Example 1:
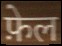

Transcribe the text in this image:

फ़ेल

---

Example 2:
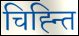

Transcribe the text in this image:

चिह्न्ति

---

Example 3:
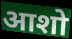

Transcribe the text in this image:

आशो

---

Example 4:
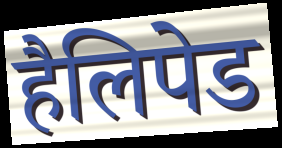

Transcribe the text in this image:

हैलिपेड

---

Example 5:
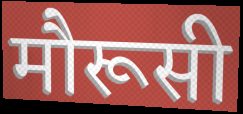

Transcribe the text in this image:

मौरूसी